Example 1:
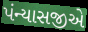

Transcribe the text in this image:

પંન્યાસજીએ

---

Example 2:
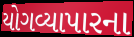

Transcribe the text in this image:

યોગવ્યાપારના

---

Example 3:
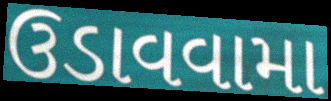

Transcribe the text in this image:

ઉડાવવામા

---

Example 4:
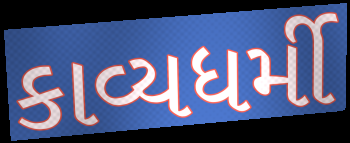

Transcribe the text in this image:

કાવ્યધર્મી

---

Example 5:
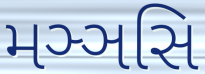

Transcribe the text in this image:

મઞ્ઞસિ